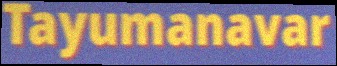
Tayumanavar